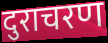
दुराचरण